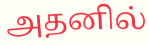
அதனில்